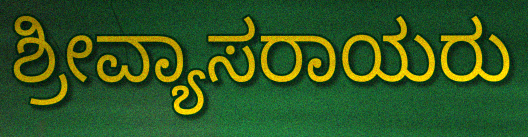
ಶ್ರೀವ್ಯಾಸರಾಯರು